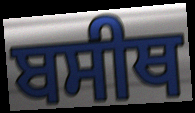
ਬਸੀਥ